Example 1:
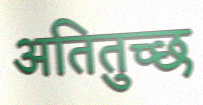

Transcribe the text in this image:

अतितुच्छ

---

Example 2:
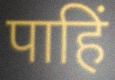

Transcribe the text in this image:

पाहिं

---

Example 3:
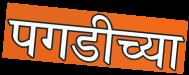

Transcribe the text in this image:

पगडीच्या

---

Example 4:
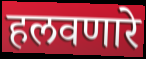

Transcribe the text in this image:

हलवणारे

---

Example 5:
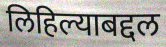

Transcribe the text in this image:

लिहिल्याबद्दल